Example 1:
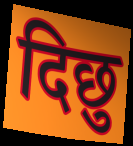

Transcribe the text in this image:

दिछु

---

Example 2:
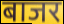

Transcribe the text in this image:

बाजर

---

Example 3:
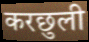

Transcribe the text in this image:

करछुली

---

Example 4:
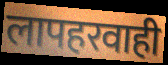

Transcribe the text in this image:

लापहरवाही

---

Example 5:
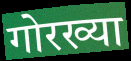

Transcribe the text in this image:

गोरख्या